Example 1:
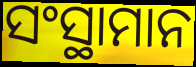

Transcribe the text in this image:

ସଂସ୍ଥାମାନ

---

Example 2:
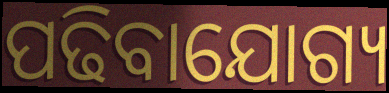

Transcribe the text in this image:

ପଢିବାଯୋଗ୍ୟ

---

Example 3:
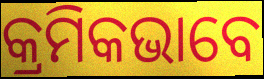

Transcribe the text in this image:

କ୍ରମିକଭାବେ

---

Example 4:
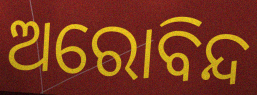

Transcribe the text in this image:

ଅରୋବିନ୍ଦ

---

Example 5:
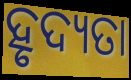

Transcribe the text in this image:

ହୃଦ୍ୟତା